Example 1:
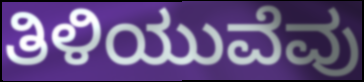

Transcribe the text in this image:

ತಿಳಿಯುವೆವು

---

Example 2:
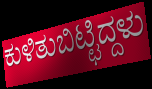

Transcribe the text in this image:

ಕುಳಿತುಬಿಟ್ಟಿದ್ದಳು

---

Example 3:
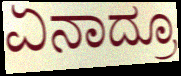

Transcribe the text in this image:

ಏನಾದ್ರೂ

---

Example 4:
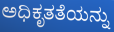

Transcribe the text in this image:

ಅಧಿಕೃತತೆಯನ್ನು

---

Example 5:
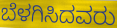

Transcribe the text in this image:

ಬೆಳಗಿಸಿದವರು